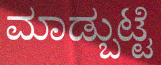
ಮಾಡ್ಬುಟ್ಟೆ